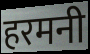
हरमनी